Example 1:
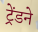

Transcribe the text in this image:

ट्रेंडने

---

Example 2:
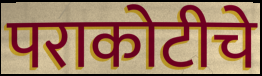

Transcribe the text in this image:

पराकोटीचे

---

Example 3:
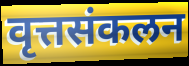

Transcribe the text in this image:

वृत्तसंकलन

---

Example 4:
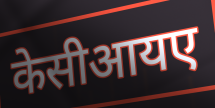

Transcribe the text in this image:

केसीआयए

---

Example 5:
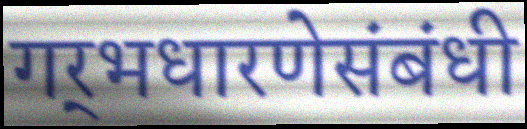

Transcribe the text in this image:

गर्भधारणेसंबंधी